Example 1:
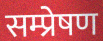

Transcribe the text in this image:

सम्प्रेषण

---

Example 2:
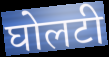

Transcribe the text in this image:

घोलटी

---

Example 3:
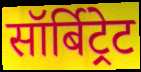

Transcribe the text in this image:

सॉर्बिट्रेट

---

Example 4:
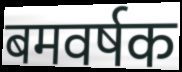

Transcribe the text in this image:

बमवर्षक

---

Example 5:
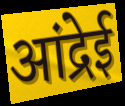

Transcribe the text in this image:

आंद्रेई